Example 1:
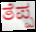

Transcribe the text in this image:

ತೆಪ್ಪ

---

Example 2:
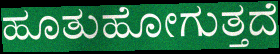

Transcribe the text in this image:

ಹೂತುಹೋಗುತ್ತದೆ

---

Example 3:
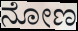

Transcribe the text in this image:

ನೋಣ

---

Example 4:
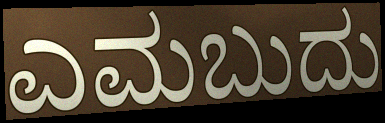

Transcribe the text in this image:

ಎಮಬುದು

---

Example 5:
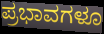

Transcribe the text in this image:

ಪ್ರಭಾವಗಳೂ